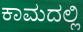
ಕಾಮದಲ್ಲಿ